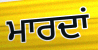
ਮਾਰਦਾਂ